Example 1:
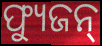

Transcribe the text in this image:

ଫ୍ୟୁଜନ୍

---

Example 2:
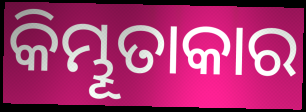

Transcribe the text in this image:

କିମ୍ଭୂତାକାର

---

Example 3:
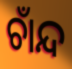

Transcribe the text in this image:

ଚାଁନ୍ଦ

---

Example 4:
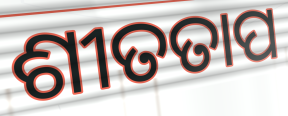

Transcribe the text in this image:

ଶୀତତାପ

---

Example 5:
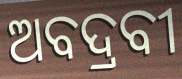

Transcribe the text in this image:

ଅବଦ୍ରବୀ